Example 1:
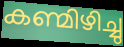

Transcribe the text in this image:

കണ്മിഴിച്ചു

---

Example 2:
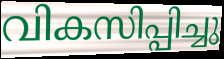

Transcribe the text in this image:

വികസിപ്പിച്ചു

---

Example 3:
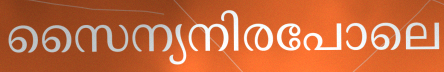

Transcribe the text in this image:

സൈന്യനിരപോലെ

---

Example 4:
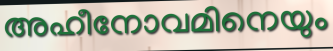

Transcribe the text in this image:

അഹീനോവമിനെയും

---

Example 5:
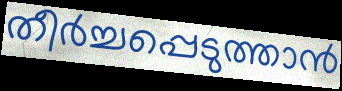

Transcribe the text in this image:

തീർച്ചപ്പെടുത്താൻ